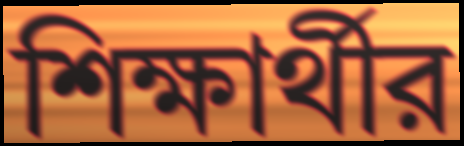
শিক্ষার্থীর